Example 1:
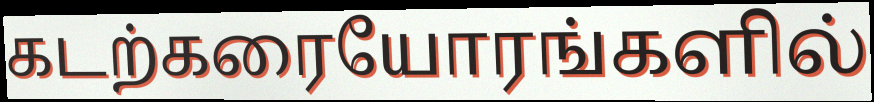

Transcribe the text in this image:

கடற்கரையோரங்களில்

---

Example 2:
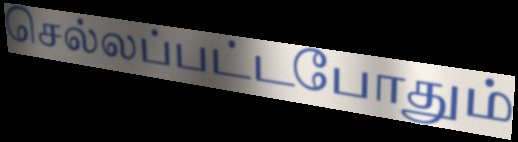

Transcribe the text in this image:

செல்லப்பட்டபோதும்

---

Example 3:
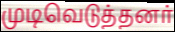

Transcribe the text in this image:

முடிவெடுத்தனர்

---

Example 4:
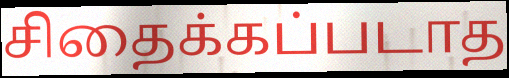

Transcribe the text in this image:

சிதைக்கப்படாத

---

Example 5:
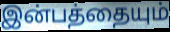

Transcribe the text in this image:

இன்பத்தையும்